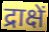
द्राक्षें